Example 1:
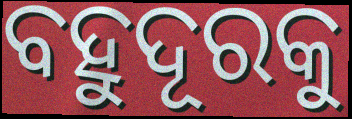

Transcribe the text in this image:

ବହୁଦୂରକୁ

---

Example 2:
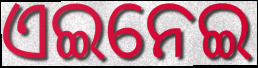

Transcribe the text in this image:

ଏଇନେଇ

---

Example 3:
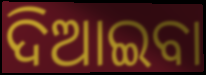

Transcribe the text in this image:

ଦିଆଇବା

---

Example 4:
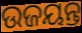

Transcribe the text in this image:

ଉଜୟନ୍ତ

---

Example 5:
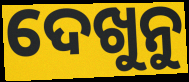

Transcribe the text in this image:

ଦେଖୁନୁ